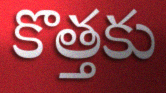
కొత్తకు